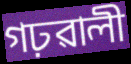
গঢ়ৱালী